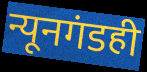
न्यूनगंडही